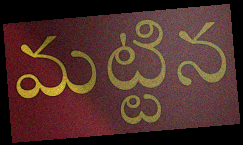
మట్టిన